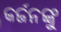
କର୍ଜନଙ୍କୁ